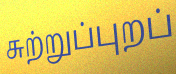
சுற்றுப்புறப்